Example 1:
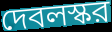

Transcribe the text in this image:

দেবলস্কর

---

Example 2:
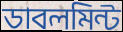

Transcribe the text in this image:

ডাবলমিন্ট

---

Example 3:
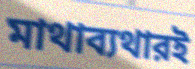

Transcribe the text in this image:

মাথাব্যথারই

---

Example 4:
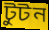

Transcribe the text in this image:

টুটন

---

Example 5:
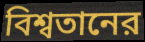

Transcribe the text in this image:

বিশ্বতানের